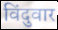
विंदुवार